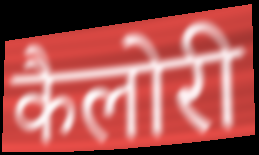
कैलोरी